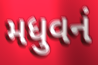
મધુવનં